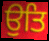
ਉਤਿ